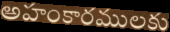
అహంకారములకు